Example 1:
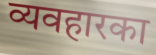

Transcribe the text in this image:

व्यवहारका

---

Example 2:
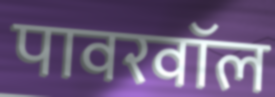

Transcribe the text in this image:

पावरवॉल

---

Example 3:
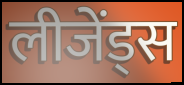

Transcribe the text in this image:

लीजेंड्स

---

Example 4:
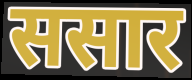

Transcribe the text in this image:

ससार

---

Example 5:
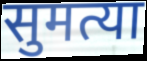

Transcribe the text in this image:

सुमत्या